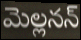
మెల్లనన్